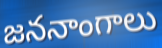
జననాంగాలు